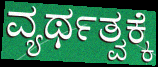
ವ್ಯರ್ಥತ್ವಕ್ಕೆ